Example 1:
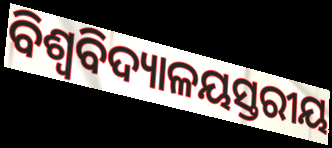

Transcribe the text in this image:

ବିଶ୍ଵବିଦ୍ୟାଳୟସ୍ତରୀୟ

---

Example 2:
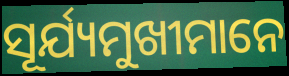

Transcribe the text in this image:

ସୂର୍ଯ୍ୟମୁଖୀମାନେ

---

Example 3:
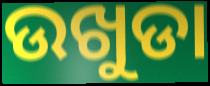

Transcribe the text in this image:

ଉଖୁଡା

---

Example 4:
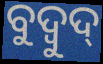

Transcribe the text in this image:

ବୁଦ୍ବୁଦ୍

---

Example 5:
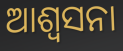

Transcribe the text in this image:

ଆଶ୍ୱସନା